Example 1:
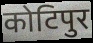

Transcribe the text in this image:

कोटिपुर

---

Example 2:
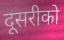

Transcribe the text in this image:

दूसरीको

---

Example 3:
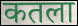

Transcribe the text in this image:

कतला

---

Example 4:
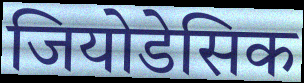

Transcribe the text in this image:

जियोडेसिक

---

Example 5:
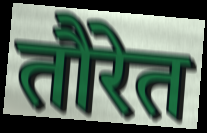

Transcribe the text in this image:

तौरेत